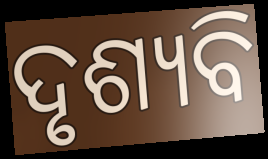
ଦୃଶ୍ୟବି